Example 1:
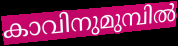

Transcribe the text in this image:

കാവിനുമുമ്പിൽ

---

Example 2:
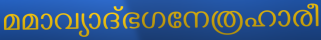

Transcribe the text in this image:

മമാവ്യാദ്ഭഗനേത്രഹാരീ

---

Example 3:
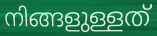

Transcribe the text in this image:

നിങ്ങളുള്ളത്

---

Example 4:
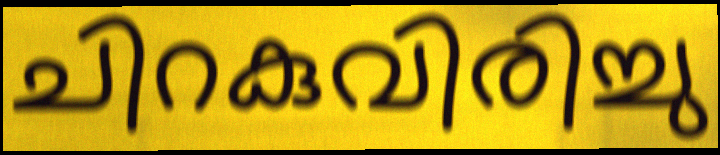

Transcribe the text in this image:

ചിറകുവിരിച്ചു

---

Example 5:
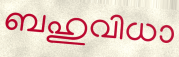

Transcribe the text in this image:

ബഹുവിധാ